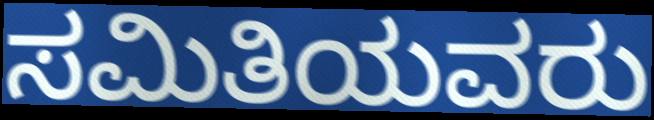
ಸಮಿತಿಯವರು